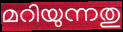
മറിയുന്നതു